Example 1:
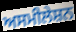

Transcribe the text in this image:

ਅਸਮੀਲੇਸ਼ਨ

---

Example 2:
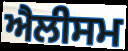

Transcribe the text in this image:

ਐਲੀਸਮ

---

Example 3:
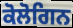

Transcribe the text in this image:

ਕੋਲੋਗਿਨ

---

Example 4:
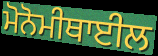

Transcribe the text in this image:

ਮੋਨੋਮੀਥਾਈਲ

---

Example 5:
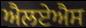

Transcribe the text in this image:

ਐਲਏਐਸ